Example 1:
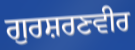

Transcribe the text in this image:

ਗੁਰਸ਼ਰਣਵੀਰ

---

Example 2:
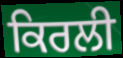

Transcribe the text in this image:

ਕਿਰਲੀ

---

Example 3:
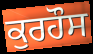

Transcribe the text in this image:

ਕੁਰਹੌਸ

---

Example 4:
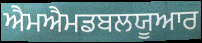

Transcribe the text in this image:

ਐਮਐਮਡਬਲਯੂਆਰ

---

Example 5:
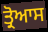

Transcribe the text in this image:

ਤ੍ਰੋਆਸ